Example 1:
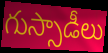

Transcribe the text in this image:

గుస్సాడీలు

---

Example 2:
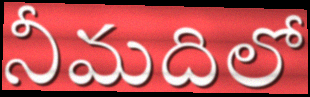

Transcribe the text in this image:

నీమదిలో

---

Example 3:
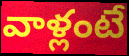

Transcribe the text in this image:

వాళ్లంటే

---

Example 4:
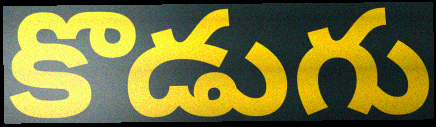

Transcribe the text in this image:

కొడుగు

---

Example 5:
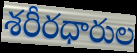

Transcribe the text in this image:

శరీరధారుల